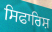
ਸਿਫਾਰਿਸ਼